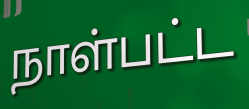
நாள்பட்ட